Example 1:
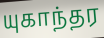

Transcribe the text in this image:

யுகாந்தர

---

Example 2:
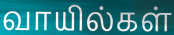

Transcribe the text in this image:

வாயில்கள்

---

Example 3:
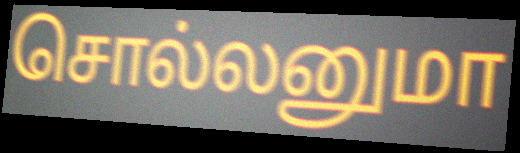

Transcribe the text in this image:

சொல்லனுமா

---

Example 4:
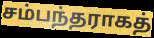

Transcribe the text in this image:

சம்பந்தராகத்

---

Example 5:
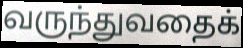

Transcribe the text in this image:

வருந்துவதைக்